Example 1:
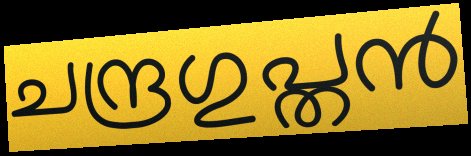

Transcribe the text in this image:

ചന്ദ്രഗുപ്തൻ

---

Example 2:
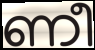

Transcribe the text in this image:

ണീ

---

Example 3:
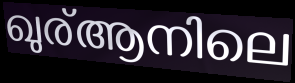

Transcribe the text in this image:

ഖുര്ആനിലെ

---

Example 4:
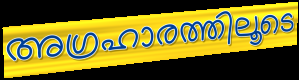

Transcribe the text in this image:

അഗ്രഹാരത്തിലൂടെ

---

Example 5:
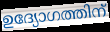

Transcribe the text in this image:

ഉദ്യോഗത്തിന്